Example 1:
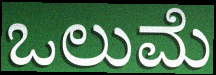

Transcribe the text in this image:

ಒಲುಮೆ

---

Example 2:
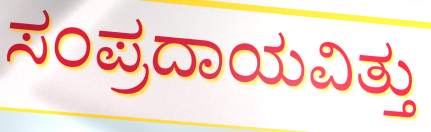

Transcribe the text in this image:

ಸಂಪ್ರದಾಯವಿತ್ತು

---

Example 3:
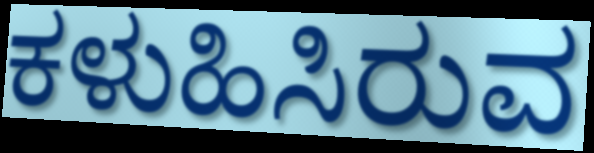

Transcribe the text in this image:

ಕಳುಹಿಸಿರುವ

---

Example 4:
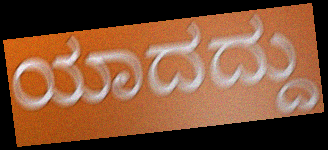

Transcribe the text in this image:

ಯಾದದ್ದು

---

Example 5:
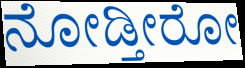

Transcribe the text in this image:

ನೋಡ್ತೀರೋ